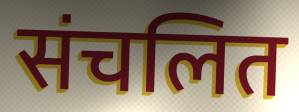
संचलित